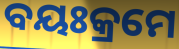
ବୟଃକ୍ରମେ